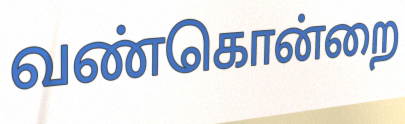
வண்கொன்றை